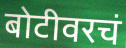
बोटीवरचं